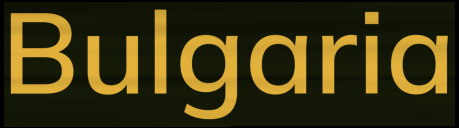
Bulgaria